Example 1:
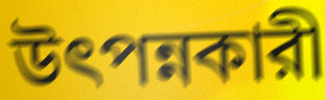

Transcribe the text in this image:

উৎপন্নকারী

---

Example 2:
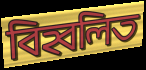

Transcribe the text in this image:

বিহ্বলিত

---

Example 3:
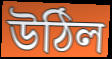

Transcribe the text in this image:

উঠিল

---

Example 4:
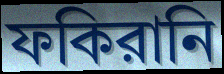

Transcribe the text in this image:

ফকিরানি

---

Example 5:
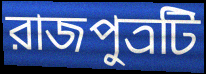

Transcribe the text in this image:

রাজপুত্রটি